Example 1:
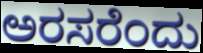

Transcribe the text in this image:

ಅರಸರೆಂದು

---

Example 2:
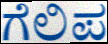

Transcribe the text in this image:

ಗೆಲಿಪ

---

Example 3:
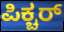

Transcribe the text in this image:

ಪಿಕ್ಚರ್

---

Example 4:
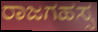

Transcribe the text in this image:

ರಾಜಗಹಸ್ಸ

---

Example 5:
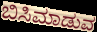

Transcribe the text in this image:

ಬಿಸಿಮಾಡುವ